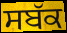
ਸਬੱਕ